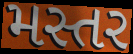
મસ્તર